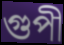
গুপী